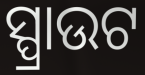
ସ୍ପ୍ରାଉଟ